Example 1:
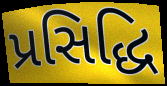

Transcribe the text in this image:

પ્રસિદ્ધિ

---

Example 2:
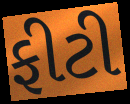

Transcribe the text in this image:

ફીટી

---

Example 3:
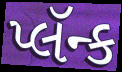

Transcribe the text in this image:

પ્લૅન્ક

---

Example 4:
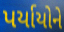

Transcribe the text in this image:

પર્યાયોને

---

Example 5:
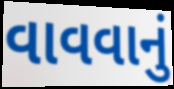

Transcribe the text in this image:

વાવવાનું